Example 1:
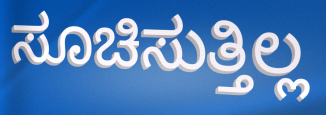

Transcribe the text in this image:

ಸೂಚಿಸುತ್ತಿಲ್ಲ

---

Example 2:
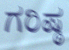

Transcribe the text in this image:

ಗರಿಷ್ಠ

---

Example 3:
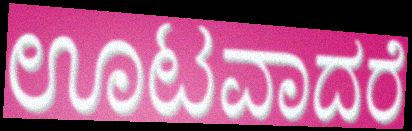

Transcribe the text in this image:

ಊಟವಾದರೆ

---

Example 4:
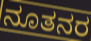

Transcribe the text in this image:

ನೂತನರ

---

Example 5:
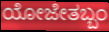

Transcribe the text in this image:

ಯೋಜೇತಬ್ಬಂ